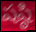
షష్ఠి